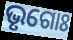
ଭୃଗୋଃ